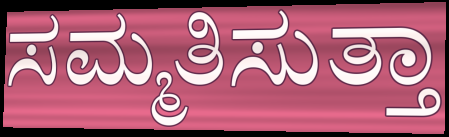
ಸಮ್ಮತಿಸುತ್ತಾ